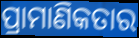
ପ୍ରାମାଣିକତାର